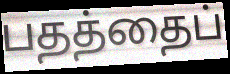
பதத்தைப்